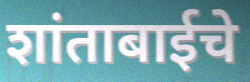
शांताबाईचे